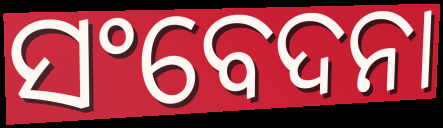
ସଂବେଦନା